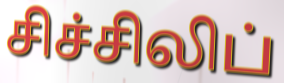
சிச்சிலிப்